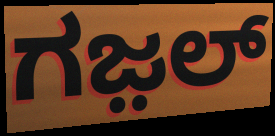
ಗಜ಼ಲ್